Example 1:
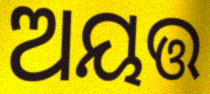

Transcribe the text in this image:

ଅୟତ୍ତ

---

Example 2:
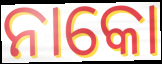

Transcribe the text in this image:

ନାକୋ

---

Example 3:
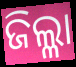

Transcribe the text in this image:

ଜିଲ୍ଳା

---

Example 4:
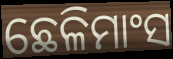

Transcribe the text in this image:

ଛେଳିମାଂସ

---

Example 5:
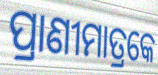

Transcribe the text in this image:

ପ୍ରାଣୀମାତ୍ରକେ